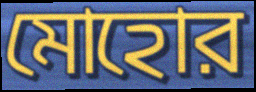
মোহোর